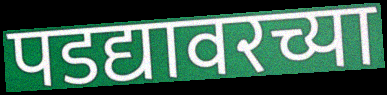
पडद्यावरच्या